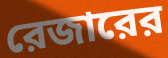
রেজারের